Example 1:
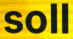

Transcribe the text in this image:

soll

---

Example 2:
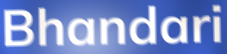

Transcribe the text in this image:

Bhandari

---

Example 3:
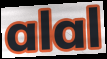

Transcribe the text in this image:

alal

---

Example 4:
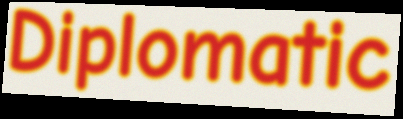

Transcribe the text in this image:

Diplomatic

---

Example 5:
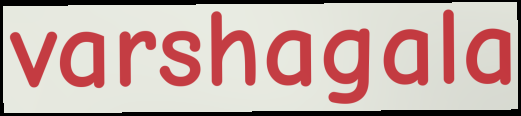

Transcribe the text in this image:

varshagala